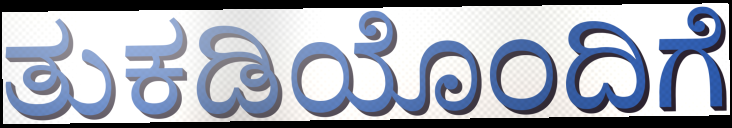
ತುಕಡಿಯೊಂದಿಗೆ